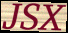
JSX